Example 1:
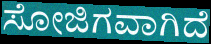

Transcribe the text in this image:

ಸೋಜಿಗವಾಗಿದೆ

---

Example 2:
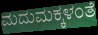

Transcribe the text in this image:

ಮದುಮಕ್ಕಳಂತೆ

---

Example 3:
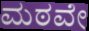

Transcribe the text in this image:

ಮಠವೇ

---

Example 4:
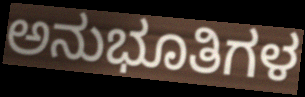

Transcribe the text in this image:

ಅನುಭೂತಿಗಳ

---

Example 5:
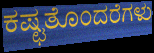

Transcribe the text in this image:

ಕಷ್ಟತೊಂದರೆಗಳು